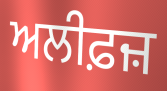
ਅਲੀਫ਼ਜ਼